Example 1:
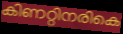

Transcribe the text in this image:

കിണറ്റിനരികെ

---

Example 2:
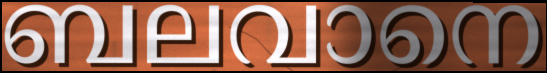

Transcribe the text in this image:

ബലവാനെ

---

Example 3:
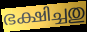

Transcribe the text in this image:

ഭക്ഷിച്ചതു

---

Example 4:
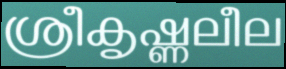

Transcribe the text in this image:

ശ്രീകൃഷ്ണലീല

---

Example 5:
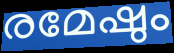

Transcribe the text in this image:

രമേഷും